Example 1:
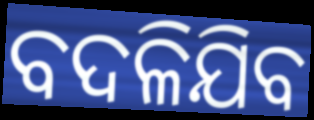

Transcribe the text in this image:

ବଦଳିଯିବ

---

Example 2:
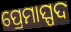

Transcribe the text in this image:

ପ୍ରେମାସ୍ପଦ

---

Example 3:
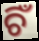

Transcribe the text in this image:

ଚିଁ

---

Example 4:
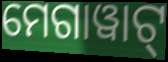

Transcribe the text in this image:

ମେଗାୱାଟ୍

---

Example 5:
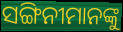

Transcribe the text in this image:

ସଙ୍ଗିନୀମାନଙ୍କୁ